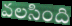
వలసింది